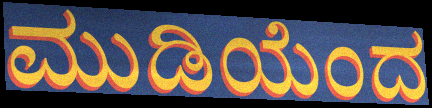
ಮುಡಿಯೆಂದ